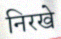
निरखे